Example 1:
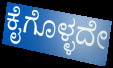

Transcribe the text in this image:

ಕೈಗೊಳ್ಳದೇ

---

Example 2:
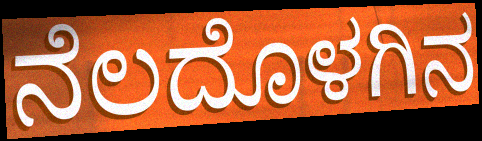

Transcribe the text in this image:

ನೆಲದೊಳಗಿನ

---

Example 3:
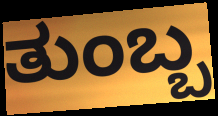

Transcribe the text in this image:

ತುಂಬ್ಬ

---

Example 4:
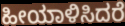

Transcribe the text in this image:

ಹೀಯಾಳಿಸಿದರೆ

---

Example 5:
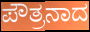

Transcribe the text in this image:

ಪೌತ್ರನಾದ